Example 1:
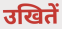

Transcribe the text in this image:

उखितें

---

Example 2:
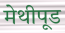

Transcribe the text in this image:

मेथीपूड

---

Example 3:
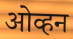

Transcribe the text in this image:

ओव्हन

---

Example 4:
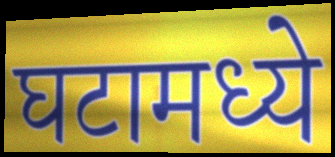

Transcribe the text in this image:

घटामध्ये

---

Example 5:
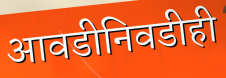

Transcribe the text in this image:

आवडीनिवडीही